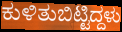
ಕುಳಿತುಬಿಟ್ಟಿದ್ದಳು